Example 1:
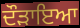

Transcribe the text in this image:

ਦੌੜਾਇਆ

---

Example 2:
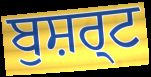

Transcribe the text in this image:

ਬੁਸ਼ਰ੍ਟ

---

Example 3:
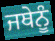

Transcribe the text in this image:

ਜਥੇਨੂੰ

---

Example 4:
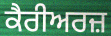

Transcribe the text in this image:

ਕੈਰੀਅਰਜ਼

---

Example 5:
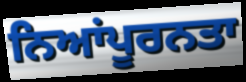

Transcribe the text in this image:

ਨਿਆਂਪੂਰਨਤਾ